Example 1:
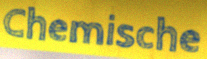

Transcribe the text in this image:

Chemische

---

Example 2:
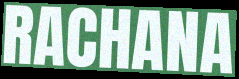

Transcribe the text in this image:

RACHANA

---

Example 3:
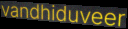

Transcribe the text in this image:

vandhiduveer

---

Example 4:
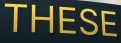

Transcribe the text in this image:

THESE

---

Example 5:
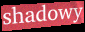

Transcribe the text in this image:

shadowy